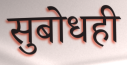
सुबोधही